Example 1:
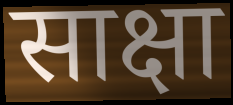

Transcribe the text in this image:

साक्षा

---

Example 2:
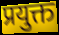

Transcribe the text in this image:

प्रयुक्त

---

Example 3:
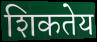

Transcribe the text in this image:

शिकतेय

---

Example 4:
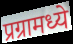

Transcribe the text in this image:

प्रग्रामध्ये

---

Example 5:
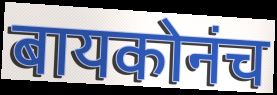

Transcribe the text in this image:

बायकोनंच